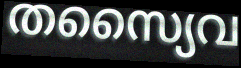
തസ്യൈവ